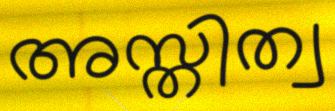
അസ്തിത്വ